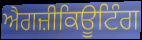
ਐਗਜ਼ੀਕਿਊਟਿੰਗ